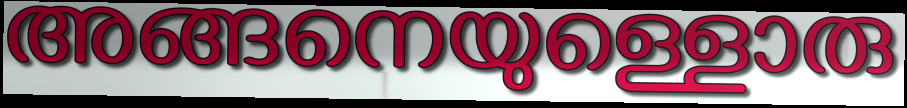
അങ്ങനെയുള്ളൊരു